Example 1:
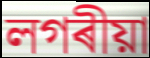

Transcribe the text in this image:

লগৰীয়া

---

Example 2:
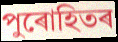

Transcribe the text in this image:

পুৰোহিতৰ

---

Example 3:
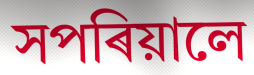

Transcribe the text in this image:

সপৰিয়ালে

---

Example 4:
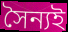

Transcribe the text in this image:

সৈন্যই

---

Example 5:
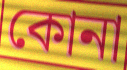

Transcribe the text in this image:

কোনা